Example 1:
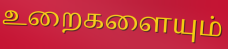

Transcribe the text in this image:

உறைகளையும்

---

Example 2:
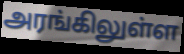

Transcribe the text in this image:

அரங்கிலுள்ள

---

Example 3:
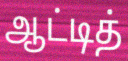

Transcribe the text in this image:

ஆட்டித்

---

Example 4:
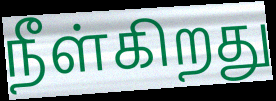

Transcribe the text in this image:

நீள்கிறது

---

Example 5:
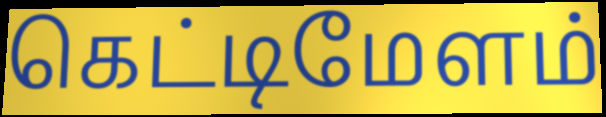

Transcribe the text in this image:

கெட்டிமேளம்